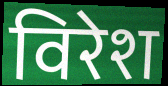
विरेश